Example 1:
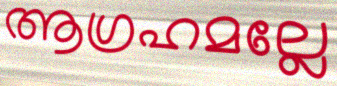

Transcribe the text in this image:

ആഗ്രഹമല്ലേ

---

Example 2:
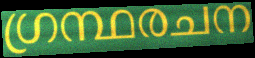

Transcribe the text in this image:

ഗ്രന്ഥരചന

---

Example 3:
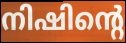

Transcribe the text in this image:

നിഷിന്റെ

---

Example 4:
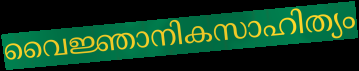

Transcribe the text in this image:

വൈജ്ഞാനികസാഹിത്യം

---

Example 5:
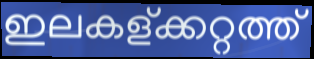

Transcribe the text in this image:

ഇലകള്ക്കറ്റത്ത്